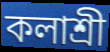
কলাশ্রী